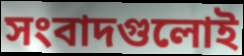
সংবাদগুলোই